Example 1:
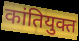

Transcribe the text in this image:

कांतियुक्त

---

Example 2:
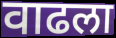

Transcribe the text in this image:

वाढला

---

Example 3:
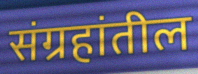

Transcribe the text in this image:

संग्रहांतील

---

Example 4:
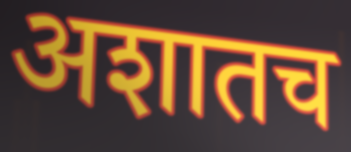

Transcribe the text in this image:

अशातच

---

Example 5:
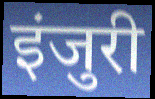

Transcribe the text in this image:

इंजुरी